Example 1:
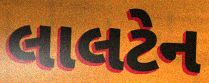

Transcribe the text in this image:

લાલટેન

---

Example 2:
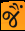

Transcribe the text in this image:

જૈં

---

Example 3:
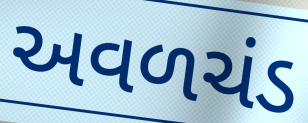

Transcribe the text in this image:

અવળચંડ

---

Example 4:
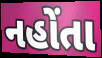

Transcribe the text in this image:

નહોંતા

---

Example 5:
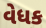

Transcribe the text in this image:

વેધક